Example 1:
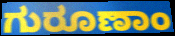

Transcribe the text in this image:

ಗುರೂಣಾಂ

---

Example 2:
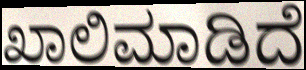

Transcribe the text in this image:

ಖಾಲಿಮಾಡಿದೆ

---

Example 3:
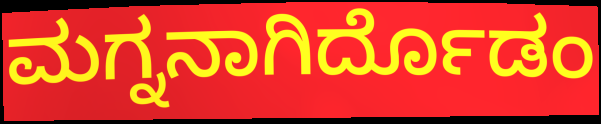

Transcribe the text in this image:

ಮಗ್ನನಾಗಿರ್ದೊಡಂ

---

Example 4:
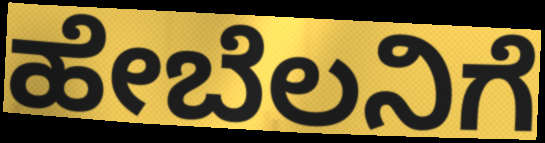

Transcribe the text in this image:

ಹೇಬೆಲನಿಗೆ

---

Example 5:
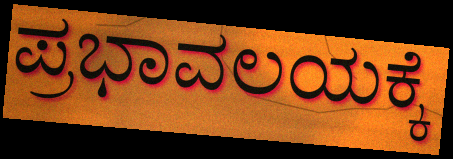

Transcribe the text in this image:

ಪ್ರಭಾವಲಯಕ್ಕೆ